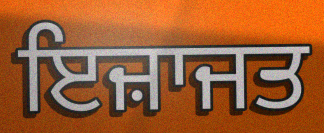
ਇਜ਼ਾਜਤ